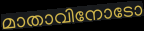
മാതാവിനോടോ